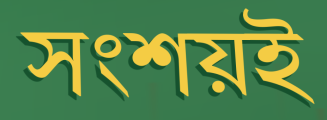
সংশয়ই